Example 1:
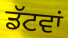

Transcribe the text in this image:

ਡੱਟਵਾਂ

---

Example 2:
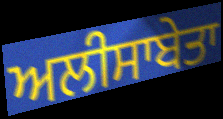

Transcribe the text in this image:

ਅਲੀਸਾਬੇਤਾ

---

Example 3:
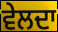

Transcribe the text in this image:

ਵੇਲਦਾ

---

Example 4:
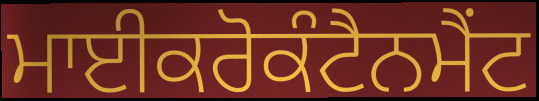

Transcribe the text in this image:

ਮਾਈਕਰੋਕੰਟੈਨਮੈਂਟ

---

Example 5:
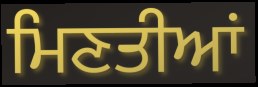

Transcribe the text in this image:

ਮਿਣਤੀਆਂ